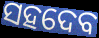
ସହଦେବ